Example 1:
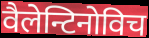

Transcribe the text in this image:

वैलेन्टिनोविच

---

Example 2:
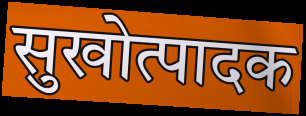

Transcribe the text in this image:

सुखोत्पादक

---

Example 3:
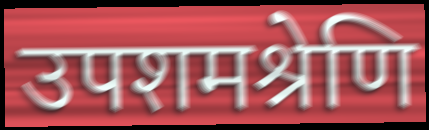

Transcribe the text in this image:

उपशमश्रेणि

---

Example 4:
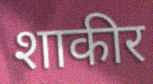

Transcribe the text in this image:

शाकीर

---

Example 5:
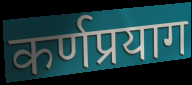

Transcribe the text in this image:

कर्णप्रयाग